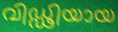
വിഡ്ഢിയായ